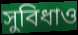
সুবিধাও